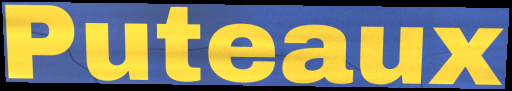
Puteaux